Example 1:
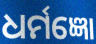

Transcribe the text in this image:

ଧର୍ମଜ୍ଞୋ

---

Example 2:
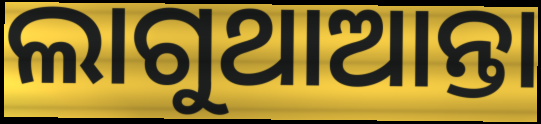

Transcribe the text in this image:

ଲାଗୁଥାଆନ୍ତା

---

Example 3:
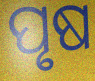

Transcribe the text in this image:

ପୃଷ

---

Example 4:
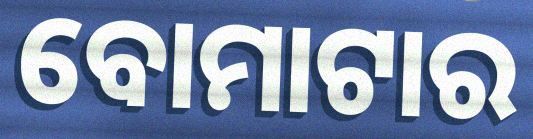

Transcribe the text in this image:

ବୋମାଟାର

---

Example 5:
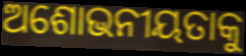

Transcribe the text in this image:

ଅଶୋଭନୀୟତାକୁ